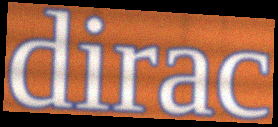
dirac